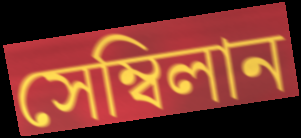
সেম্বিলান